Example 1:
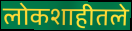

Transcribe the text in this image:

लोकशाहीतले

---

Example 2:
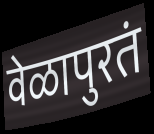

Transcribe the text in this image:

वेळापुरतं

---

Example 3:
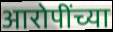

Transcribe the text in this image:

आरोपींच्या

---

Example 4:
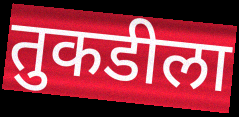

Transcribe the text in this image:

तुकडीला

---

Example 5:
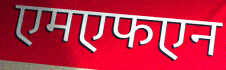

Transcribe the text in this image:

एमएफएन